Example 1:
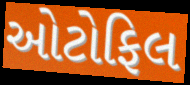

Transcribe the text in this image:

ઓટોફિલ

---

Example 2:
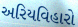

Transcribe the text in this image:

અરિયવિહારો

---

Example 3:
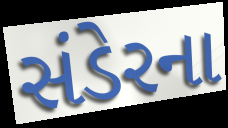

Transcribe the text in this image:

સંડેરના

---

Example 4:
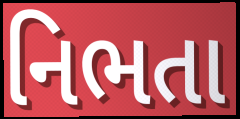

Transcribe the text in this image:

નિભતા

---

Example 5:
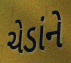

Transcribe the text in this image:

ચેડાંને